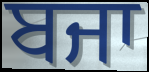
ਬਜਾ